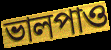
ভালপাও